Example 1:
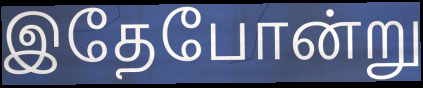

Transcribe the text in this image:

இதேபோன்று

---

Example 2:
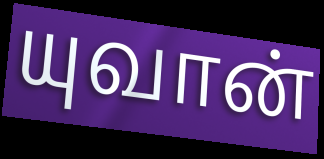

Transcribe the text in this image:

யுவான்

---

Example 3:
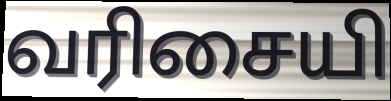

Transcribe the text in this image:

வரிசையி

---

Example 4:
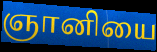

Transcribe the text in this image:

ஞானியை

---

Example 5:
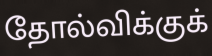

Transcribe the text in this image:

தோல்விக்குக்